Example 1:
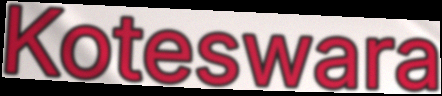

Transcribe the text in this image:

Koteswara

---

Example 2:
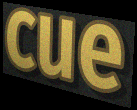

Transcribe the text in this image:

cue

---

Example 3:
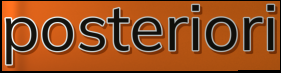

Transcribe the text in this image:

posteriori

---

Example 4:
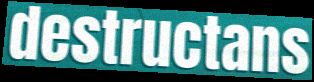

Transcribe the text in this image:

destructans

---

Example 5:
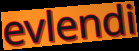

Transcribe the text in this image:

evlendi